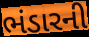
ભંડારની